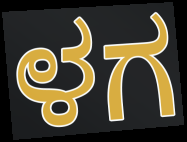
ಳಗ